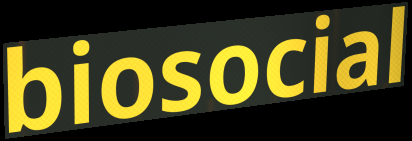
biosocial